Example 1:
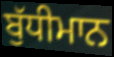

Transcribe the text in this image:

ਬੁੱਧੀਮਾਨ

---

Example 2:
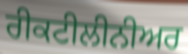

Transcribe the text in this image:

ਰੀਕਟੀਲੀਨੀਅਰ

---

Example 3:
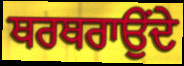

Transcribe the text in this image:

ਥਰਥਰਾਉਂਦੇ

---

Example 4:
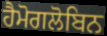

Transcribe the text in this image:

ਹੈਮੋਗਲੋਬਿਨ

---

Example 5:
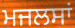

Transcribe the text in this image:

ਮਜਲਸਾਂ